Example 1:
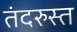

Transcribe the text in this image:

तंदरुस्त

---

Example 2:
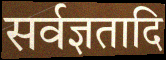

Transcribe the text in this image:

सर्वज्ञतादि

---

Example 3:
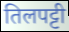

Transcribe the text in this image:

तिलपट्टी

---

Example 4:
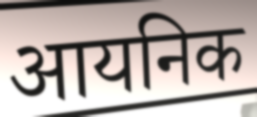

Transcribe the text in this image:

आयनिक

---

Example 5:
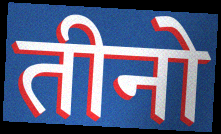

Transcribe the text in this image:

तीनो